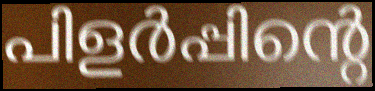
പിളർപ്പിന്റെ